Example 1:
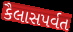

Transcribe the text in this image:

કૈલાસપર્વત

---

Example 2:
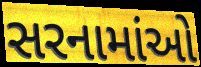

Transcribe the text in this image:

સરનામાંઓ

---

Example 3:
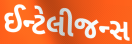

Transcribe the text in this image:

ઈન્ટેલીજન્સ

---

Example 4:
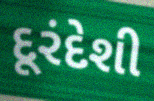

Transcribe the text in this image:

દૂરંદેશી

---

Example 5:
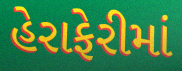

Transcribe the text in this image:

હેરાફેરીમાં